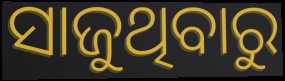
ସାଜୁଥିବାରୁ